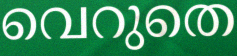
വെറുതെ